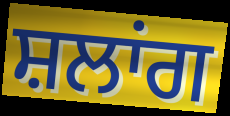
ਸ਼ਲਾਂਗ